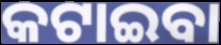
କଟାଇବା